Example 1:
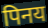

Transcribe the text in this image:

पिनय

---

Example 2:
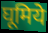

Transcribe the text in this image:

घूमिये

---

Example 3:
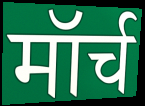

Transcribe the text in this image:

मॉर्च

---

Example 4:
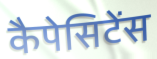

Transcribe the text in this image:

कैपेसिटेंस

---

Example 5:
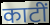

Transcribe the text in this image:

काटीं